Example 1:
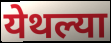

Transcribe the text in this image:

येथल्या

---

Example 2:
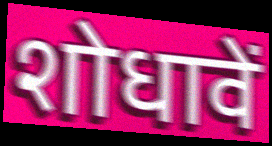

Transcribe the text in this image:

शोधावें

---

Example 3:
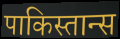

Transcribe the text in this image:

पाकिस्तान्स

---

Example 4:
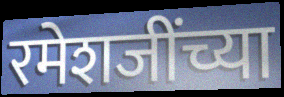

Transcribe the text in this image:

रमेशजींच्या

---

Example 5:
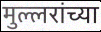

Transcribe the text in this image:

मुल्लरांच्या